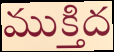
ముక్తిద